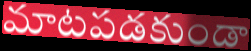
మాటపడకుండా